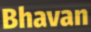
Bhavan